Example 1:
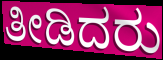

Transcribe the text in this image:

ತೀಡಿದರು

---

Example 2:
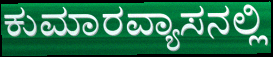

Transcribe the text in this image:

ಕುಮಾರವ್ಯಾಸನಲ್ಲಿ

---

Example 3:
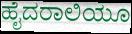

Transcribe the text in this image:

ಹೈದರಾಲಿಯೂ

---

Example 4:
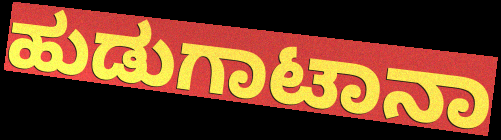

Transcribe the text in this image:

ಹುಡುಗಾಟಾನಾ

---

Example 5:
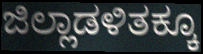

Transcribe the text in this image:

ಜಿಲ್ಲಾಡಳಿತಕ್ಕೂ